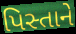
પિસ્તાને